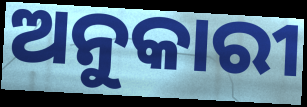
ଅନୁକାରୀ